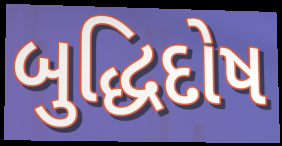
બુદ્ધિદોષ